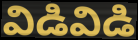
విడివిడి